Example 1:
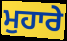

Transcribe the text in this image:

ਮੁਹਾਰੇ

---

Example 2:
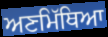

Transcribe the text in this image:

ਅਣਮਿੱਥਿਆ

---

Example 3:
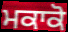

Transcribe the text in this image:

ਮਕਾਕੋ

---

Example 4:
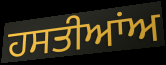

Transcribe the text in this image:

ਹਸਤੀਆਂਅ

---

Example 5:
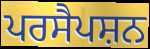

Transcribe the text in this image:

ਪਰਸੈਪਸ਼ਨ